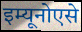
इम्यूनोएसे